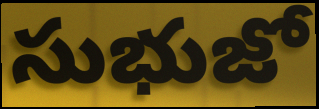
సుభుజో